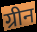
ग्रीन